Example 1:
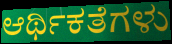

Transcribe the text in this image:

ಆರ್ಥಿಕತೆಗಳು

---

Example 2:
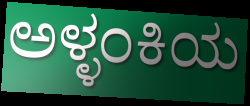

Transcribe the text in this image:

ಅಳ್ಳಂಕಿಯ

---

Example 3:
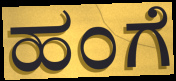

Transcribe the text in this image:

ಹಂಗೆ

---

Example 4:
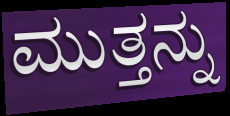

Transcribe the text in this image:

ಮುತ್ತನ್ನು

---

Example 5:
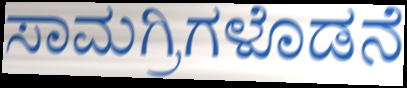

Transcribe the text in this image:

ಸಾಮಗ್ರಿಗಳೊಡನೆ